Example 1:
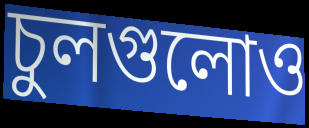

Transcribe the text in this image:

চুলগুলোও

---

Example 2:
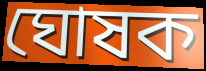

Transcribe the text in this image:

ঘোষক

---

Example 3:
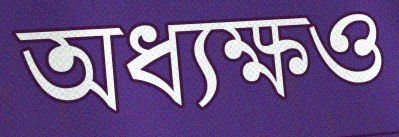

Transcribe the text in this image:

অধ্যক্ষও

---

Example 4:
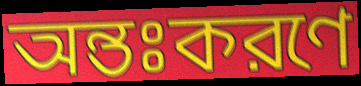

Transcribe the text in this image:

অন্তঃকরণে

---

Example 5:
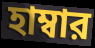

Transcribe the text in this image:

হাম্বার